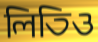
লিতিও